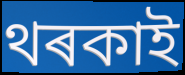
থৰকাই